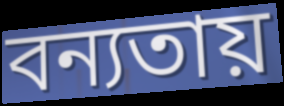
বন্যতায়